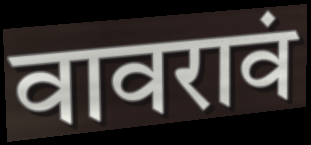
वावरावं